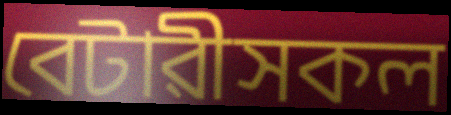
বেটাৱীসকল